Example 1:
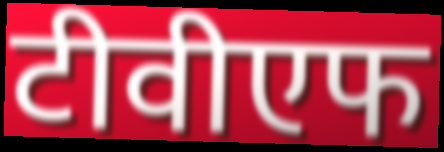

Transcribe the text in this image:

टीवीएफ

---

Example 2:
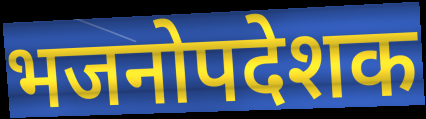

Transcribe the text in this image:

भजनोपदेशक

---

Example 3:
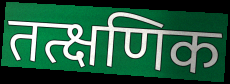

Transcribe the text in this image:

तत्क्षणिक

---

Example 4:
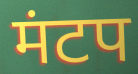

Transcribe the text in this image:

मंटप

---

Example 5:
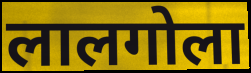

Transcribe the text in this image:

लालगोला